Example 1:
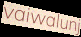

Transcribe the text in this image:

vaiwalunj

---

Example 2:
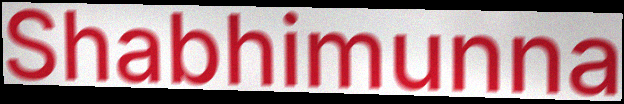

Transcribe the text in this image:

Shabhimunna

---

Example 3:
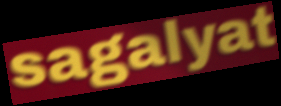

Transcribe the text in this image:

sagalyat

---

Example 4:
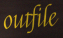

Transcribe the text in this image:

outfile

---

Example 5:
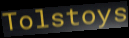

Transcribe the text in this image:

Tolstoys